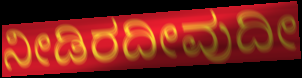
ನೀಡಿರದೀವುದೀ